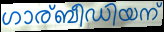
ഗാര്ബീഡിയന്